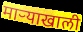
माऱ्याखाली